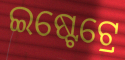
ଇଷ୍ଟେଟ୍ରେ